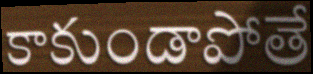
కాకుండాపోతే